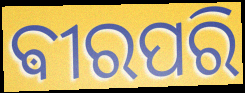
ଵୀରପରି